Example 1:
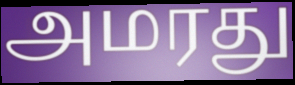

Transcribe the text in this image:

அமரது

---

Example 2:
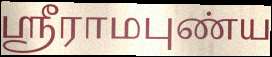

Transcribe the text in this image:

ஸ்ரீராமபுண்ய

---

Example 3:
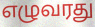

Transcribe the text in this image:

எழுவரது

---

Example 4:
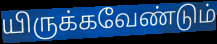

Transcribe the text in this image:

யிருக்கவேண்டும்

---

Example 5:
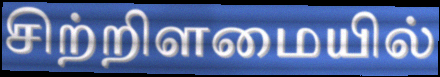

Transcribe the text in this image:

சிற்றிளமையில்